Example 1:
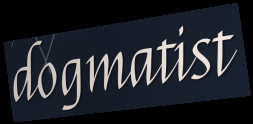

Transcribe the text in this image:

dogmatist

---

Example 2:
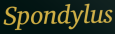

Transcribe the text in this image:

Spondylus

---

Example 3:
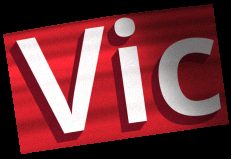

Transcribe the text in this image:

Vic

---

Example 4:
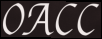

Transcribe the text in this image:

OACC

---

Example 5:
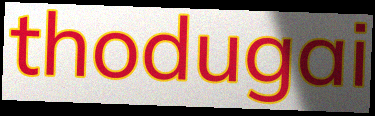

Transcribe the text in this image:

thodugai